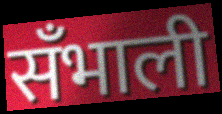
सँभाली